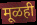
मूळही